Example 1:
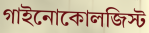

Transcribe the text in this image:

গাইনোকোলজিস্ট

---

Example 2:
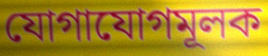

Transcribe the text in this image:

যোগাযোগমূলক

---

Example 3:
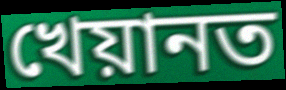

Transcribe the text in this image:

খেয়ানত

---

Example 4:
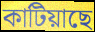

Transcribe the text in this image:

কাটিয়াছে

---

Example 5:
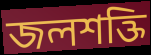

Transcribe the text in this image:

জলশক্তি